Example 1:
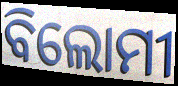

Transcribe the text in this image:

ବିଲୋମୀ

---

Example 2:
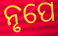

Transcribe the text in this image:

ନୃପେ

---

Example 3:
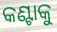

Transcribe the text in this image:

କଣ୍ଟାକୁ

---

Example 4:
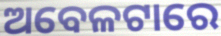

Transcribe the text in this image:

ଅବେଳଟାରେ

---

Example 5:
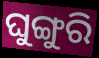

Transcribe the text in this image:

ଘୁଙ୍ଗୁରି